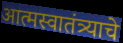
आत्मस्वातंत्र्याचे